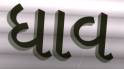
ધાવ